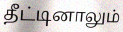
தீட்டினாலும்